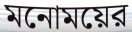
মনোময়ের